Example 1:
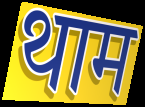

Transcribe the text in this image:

थाम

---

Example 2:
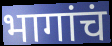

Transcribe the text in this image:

भागांचं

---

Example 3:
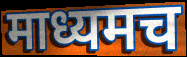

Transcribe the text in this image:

माध्यमच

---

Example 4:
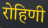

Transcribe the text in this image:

रोहिणी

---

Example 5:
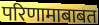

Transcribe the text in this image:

परिणामाबाबत